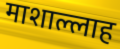
माशाल्लाह